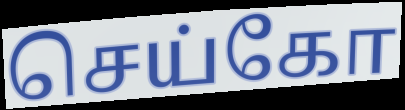
செய்கோ